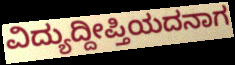
ವಿದ್ಯುದ್ದೀಪ್ತಿಯದನಾಗ